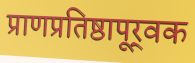
प्राणप्रतिष्ठापूर्वक